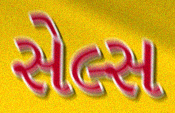
સેલ્સ